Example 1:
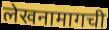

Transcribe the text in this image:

लेखनामागची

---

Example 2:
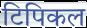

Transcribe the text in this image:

टिपिकल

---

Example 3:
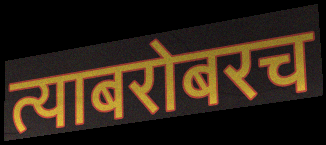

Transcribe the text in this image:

त्याबरोबरच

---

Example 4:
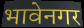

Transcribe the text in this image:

भावेनगर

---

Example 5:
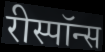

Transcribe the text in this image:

रीस्पॉन्स